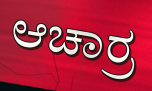
ಆಚಾರ್ರ